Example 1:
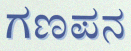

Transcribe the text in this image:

ಗಣಪನ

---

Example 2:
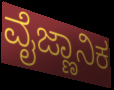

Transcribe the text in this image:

ವೈಜ್ಣಾನಿಕ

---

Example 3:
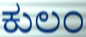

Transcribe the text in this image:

ಕುಲಂ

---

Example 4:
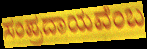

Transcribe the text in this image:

ಸಂಪ್ರದಾಯವೆಂಬ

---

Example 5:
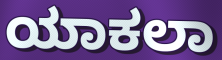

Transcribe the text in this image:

ಯಾಕಲಾ